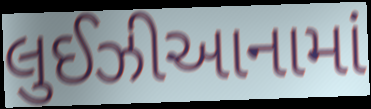
લુઈઝીઆનામાં